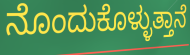
ನೊಂದುಕೊಳ್ಳುತ್ತಾನೆ